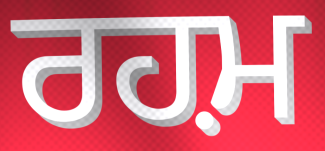
ਰਹ਼ਮ